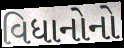
વિધાનોનો